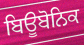
ਬਿਊਬੋਨਿਕ